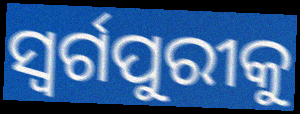
ସ୍ୱର୍ଗପୁରୀକୁ